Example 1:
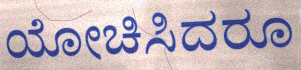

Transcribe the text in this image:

ಯೋಚಿಸಿದರೂ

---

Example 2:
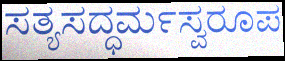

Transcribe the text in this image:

ಸತ್ಯಸದ್ಧರ್ಮಸ್ವರೂಪ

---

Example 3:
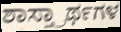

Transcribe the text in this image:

ಶಾಸ್ತ್ರಾರ್ಥಗಳ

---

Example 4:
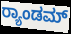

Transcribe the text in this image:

ರ್‍ಯಾಂಡಮ್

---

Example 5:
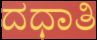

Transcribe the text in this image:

ದಧಾತಿ